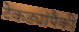
टेकड्यांपैकी